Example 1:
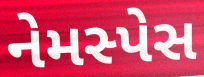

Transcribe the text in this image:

નેમસ્પેસ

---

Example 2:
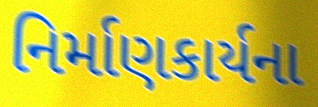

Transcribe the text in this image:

નિર્માણકાર્યના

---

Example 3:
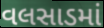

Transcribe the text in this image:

વલસાડમાં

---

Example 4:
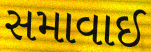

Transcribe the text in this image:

સમાવાઈ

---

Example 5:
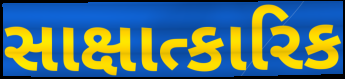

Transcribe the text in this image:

સાક્ષાત્કારિક